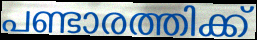
പണ്ടാരത്തിക്ക്